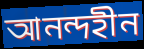
আনন্দহীন